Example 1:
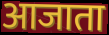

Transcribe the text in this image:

आजाता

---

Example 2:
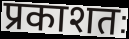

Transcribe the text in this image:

प्रकाशतः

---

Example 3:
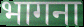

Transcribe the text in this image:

भागना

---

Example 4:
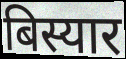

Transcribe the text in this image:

बिस्यार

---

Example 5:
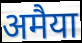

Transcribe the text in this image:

अमैया